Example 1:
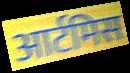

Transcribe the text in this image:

आर्टमिस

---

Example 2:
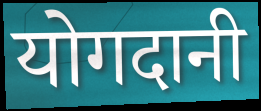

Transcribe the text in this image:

योगदानी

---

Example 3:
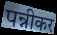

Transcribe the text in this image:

पन्नीकर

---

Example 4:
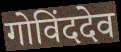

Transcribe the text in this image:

गोविंददेव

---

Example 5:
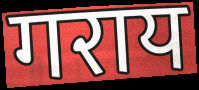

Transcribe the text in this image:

गराय